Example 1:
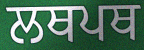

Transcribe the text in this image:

ਲਥਪਥ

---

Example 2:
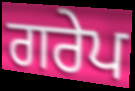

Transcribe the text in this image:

ਗਰੇਪ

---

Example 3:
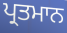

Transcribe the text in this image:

ਪ੍ਰਤਮਾਨ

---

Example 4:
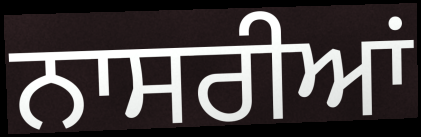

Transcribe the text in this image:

ਨਾਸਰੀਆਂ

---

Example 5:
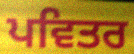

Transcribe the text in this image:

ਪਵਿਤਰ